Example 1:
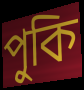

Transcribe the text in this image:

পুকি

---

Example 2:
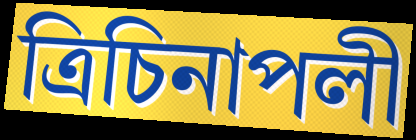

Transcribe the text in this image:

ত্রিচিনাপলী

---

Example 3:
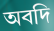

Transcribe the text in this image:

অবদি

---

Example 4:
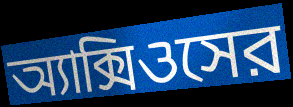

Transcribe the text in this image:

অ্যাক্সিওসের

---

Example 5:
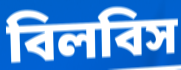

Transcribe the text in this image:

বিলবিস